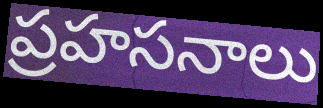
ప్రహసనాలు